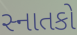
સ્નાતકો